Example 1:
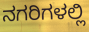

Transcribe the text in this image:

ನಗರಿಗಳಲ್ಲಿ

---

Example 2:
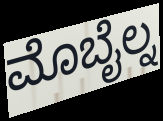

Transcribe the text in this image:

ಮೊಬೈಲ್ನ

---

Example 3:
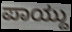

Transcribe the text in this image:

ಪಾಯ್ದು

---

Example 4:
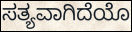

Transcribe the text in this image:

ಸತ್ಯವಾಗಿದೆಯೊ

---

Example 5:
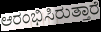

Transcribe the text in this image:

ಆರಂಭಿಸಿರುತ್ತಾರೆ